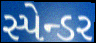
સ્પેન્ડર